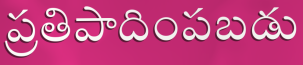
ప్రతిపాదింపబడు